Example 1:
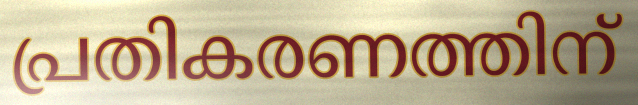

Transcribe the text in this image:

പ്രതികരണത്തിന്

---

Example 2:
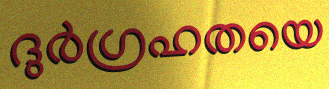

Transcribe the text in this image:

ദുർഗ്രഹതയെ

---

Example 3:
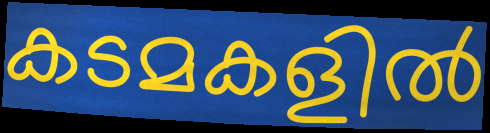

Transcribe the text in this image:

കടമകളിൽ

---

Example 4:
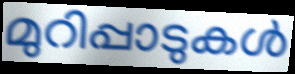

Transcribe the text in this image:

മുറിപ്പാടുകൾ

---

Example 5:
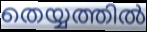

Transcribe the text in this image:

തെയ്യത്തിൽ